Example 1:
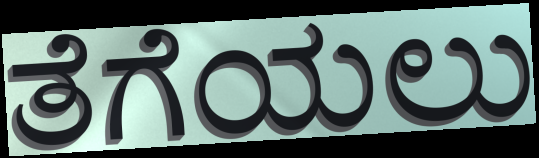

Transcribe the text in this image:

ತೆಗೆಯಲು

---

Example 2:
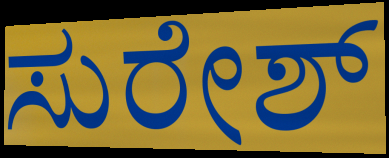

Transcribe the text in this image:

ಸುರೇಶ್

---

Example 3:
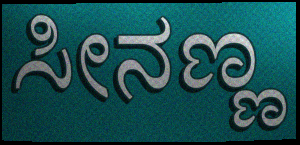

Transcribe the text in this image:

ಸೀನಣ್ಣ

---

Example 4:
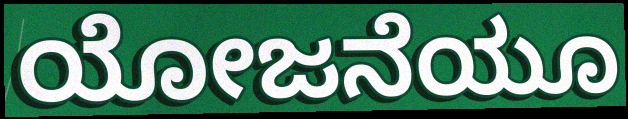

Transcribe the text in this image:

ಯೋಜನೆಯೂ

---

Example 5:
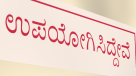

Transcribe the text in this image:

ಉಪಯೋಗಿಸಿದ್ದೇವೆ